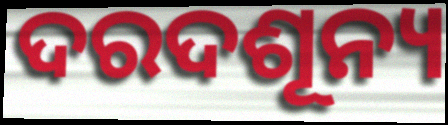
ଦରଦଶୂନ୍ୟ